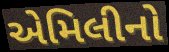
એમિલીનો